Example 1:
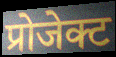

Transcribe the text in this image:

प्रोजेक्ट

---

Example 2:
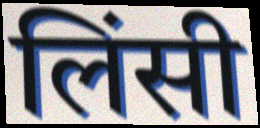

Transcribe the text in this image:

लिंसी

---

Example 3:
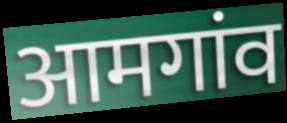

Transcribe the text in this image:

आमगांव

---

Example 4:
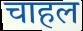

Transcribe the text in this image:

चाहल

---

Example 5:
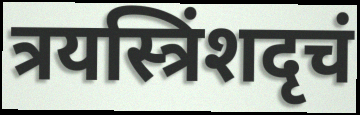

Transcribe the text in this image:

त्रयस्त्रिंशदृचं